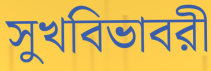
সুখবিভাবরী